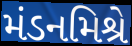
મંડનમિશ્રે